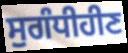
ਸੁਗੰਧੀਹੀਣ